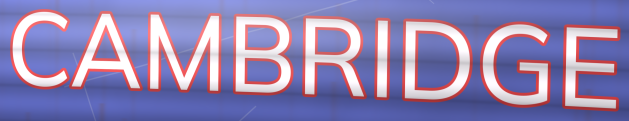
CAMBRIDGE